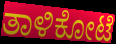
ತಾಳಿಕೋಟೆ